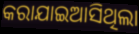
କରାଯାଇଆସିଥିଲା